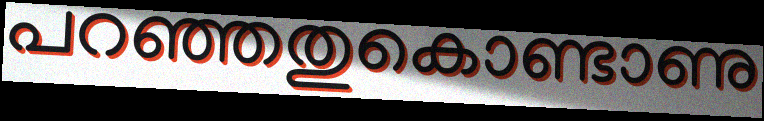
പറഞ്ഞതുകൊണ്ടാണു